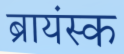
ब्रायंस्क